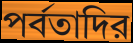
পর্বতাদির